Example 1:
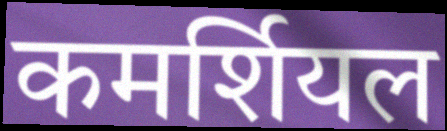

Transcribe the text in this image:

कमर्शियल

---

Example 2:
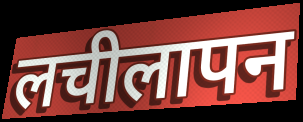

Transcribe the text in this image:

लचीलापन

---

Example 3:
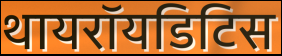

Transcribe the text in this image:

थायरॉयडिटिस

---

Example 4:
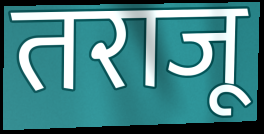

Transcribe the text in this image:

तराजू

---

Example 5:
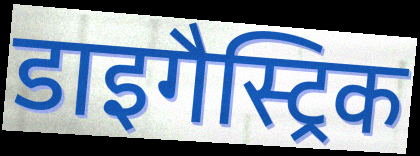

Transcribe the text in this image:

डाइगैस्ट्रिक